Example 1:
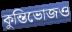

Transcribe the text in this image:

কুন্তিভোজও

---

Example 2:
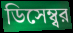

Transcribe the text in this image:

ডিসেম্ব্বর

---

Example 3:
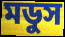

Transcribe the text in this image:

মডুস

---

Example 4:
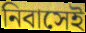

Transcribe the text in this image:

নিবাসেই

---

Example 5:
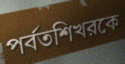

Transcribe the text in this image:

পর্বতশিখরকে